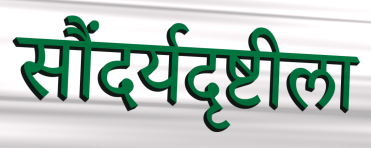
सौंदर्यदृष्टीला